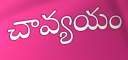
చావ్యయం